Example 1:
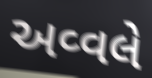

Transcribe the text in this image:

અવ્વલે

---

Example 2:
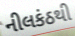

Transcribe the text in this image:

નીલકંઠથી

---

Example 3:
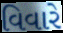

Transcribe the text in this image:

વિવારે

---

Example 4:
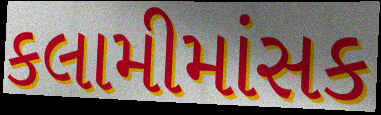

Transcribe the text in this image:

કલામીમાંસક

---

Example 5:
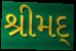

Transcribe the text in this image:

શ્રીમદ્‍